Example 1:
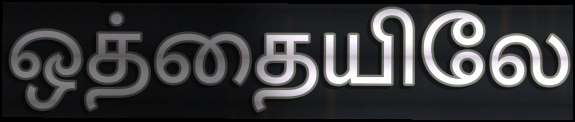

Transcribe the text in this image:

ஒத்தையிலே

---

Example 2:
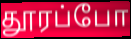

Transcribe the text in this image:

தூரப்போ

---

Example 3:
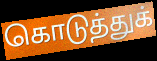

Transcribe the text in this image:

கொடுத்துக்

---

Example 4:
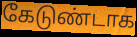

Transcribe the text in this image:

கேடுண்டாக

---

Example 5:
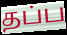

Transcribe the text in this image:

தப்ப